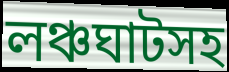
লঞ্চঘাটসহ